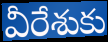
వీరేశుకు